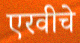
एरवीचे